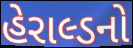
હેરાલ્ડનો